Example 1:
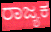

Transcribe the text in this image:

ರಾಜ್ಯಕ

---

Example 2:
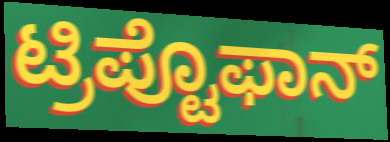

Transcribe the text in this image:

ಟ್ರಿಪ್ಟೊಫಾನ್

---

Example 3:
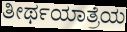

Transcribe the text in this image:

ತೀರ್ಥಯಾತ್ರೆಯ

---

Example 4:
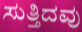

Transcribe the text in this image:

ಸುತ್ತಿದವು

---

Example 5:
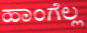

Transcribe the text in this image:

ಹಾಂಗೆಲ್ಲ